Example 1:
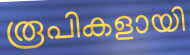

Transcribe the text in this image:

രൂപികളായി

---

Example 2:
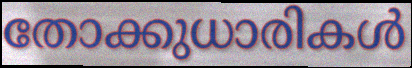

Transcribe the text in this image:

തോക്കുധാരികൾ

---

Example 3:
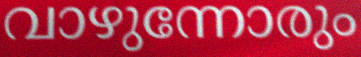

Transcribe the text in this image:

വാഴുന്നോരും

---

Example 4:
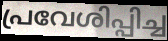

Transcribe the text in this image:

പ്രവേശിപ്പിച്ച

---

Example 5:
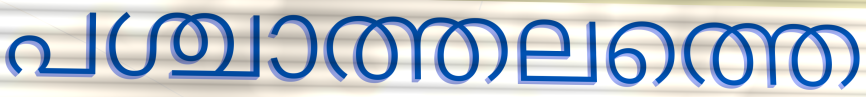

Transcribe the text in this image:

പശ്ചാത്തലത്തെ